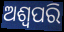
ଅଶ୍ୱପରି